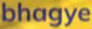
bhagye